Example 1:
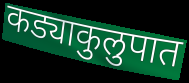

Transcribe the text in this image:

कड्याकुलुपात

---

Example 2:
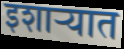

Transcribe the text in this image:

इशाऱ्यात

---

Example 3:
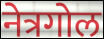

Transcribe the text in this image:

नेत्रगोल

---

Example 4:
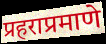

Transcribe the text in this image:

प्रहराप्रमाणे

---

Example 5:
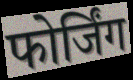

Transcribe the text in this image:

फोर्जिंग